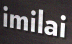
imilai